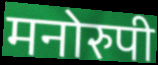
मनोरुपी